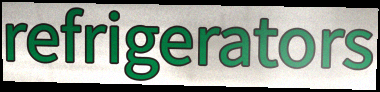
refrigerators